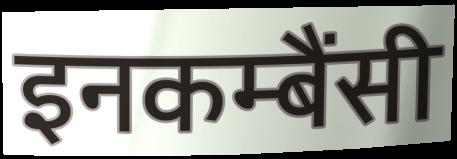
इनकम्बैंसी